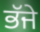
ਭੱਜੇ